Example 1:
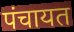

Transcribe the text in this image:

पंचायत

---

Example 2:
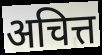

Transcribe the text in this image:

अचित्त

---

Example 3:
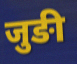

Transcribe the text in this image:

जुङी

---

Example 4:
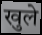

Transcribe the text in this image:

खुले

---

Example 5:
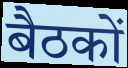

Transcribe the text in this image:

बैठकों